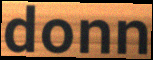
donn